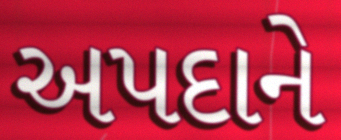
અપદાને